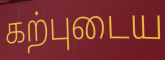
கற்புடைய